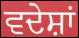
ਵਦੇਸ਼ਾਂ